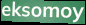
eksomoy